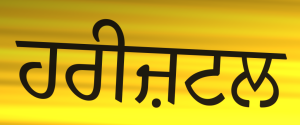
ਹਰੀਜ਼ਟਲ